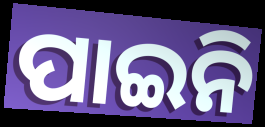
ପାଇନି